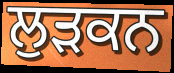
ਲੁੜਕਨ